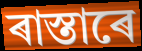
ৰাস্তাৰে